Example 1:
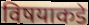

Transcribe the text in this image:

विषयाकडे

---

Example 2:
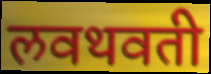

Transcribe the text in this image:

लवथवती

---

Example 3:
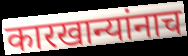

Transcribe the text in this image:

कारखान्यांनाच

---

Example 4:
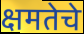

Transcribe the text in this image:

क्षमतेचे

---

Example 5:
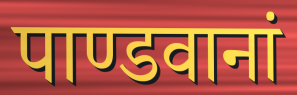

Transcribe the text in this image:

पाण्डवानां